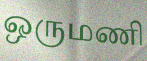
ஒருமணி